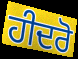
ਹੀਦਰੋ